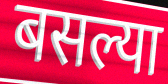
बसल्या